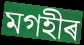
মগহীৰ